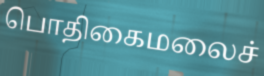
பொதிகைமலைச்